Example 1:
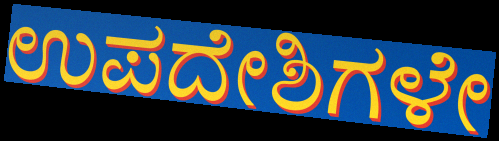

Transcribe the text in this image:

ಉಪದೇಶಿಗಳೇ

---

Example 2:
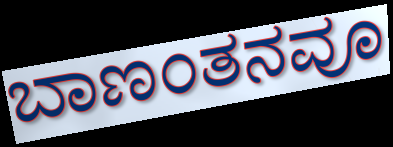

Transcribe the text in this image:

ಬಾಣಂತನವೂ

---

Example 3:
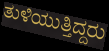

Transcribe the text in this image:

ತುಳಿಯುತ್ತಿದ್ದರು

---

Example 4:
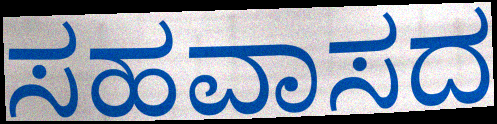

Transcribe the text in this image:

ಸಹವಾಸದ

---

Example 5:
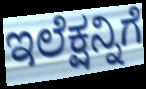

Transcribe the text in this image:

ಇಲೆಕ್ಷನ್ನಿಗೆ